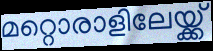
മറ്റൊരാളിലേയ്ക്ക്